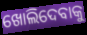
ଖୋଲିଦେବାକୁ